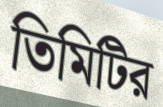
তিমিটির